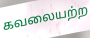
கவலையற்ற